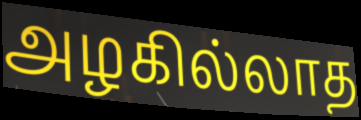
அழகில்லாத